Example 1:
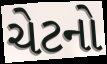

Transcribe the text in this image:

ચેટનો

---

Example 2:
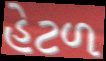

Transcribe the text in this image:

હેટળ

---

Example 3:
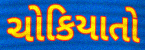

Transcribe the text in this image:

ચોકિયાતો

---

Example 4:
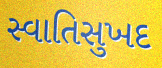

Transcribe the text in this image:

સ્વાતિસુખદ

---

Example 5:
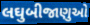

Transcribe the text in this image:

લઘુબીજાણુઓ